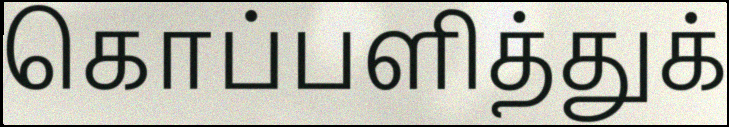
கொப்பளித்துக்